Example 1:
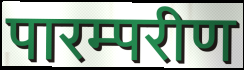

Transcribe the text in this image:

पारम्परीण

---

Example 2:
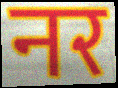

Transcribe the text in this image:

नर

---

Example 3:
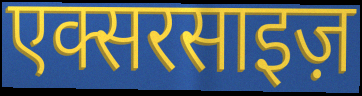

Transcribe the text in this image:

एक्सरसाइज़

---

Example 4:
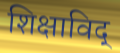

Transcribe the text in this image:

शिक्षाविद्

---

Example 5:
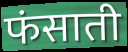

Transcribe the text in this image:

फंसाती